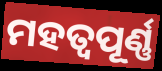
ମହତ୍ବପୂର୍ଣ୍ଣ